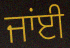
ਜਾਂਈ